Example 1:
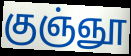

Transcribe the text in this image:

குஞ்ஞூ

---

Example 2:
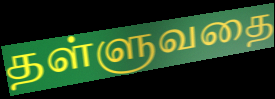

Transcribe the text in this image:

தள்ளுவதை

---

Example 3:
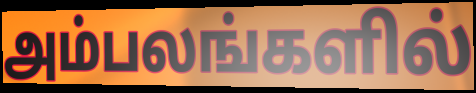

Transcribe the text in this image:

அம்பலங்களில்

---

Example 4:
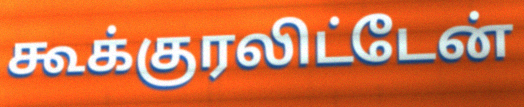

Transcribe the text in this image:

கூக்குரலிட்டேன்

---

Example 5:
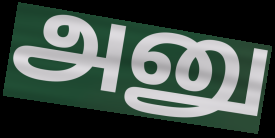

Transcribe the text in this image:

அனு